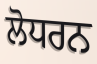
ਲੋਧਰਨ